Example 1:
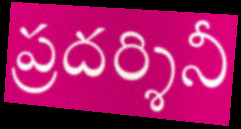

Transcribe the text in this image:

ప్రదర్శినీ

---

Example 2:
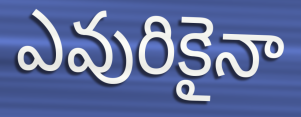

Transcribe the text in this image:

ఎవురికైనా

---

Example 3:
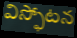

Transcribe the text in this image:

విస్ఫోటన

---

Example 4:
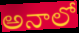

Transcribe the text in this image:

అనాలో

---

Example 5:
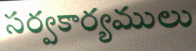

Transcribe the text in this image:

సర్వకార్యములు